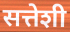
सत्तेशी